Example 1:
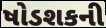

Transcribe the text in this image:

ષોડશકની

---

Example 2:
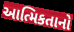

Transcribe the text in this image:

આત્મિકતાનો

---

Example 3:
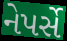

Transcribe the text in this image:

નેપર્સે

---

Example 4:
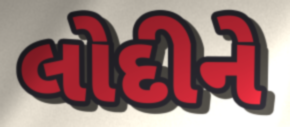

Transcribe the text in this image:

લોદીને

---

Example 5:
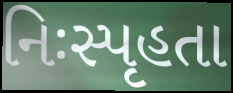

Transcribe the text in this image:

નિઃસ્પૃહતા